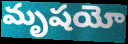
మృషయో